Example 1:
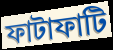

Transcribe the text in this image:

ফাটাফাটি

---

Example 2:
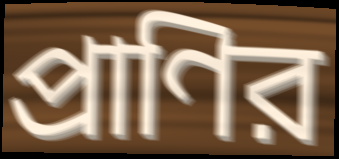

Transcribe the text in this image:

প্রাণির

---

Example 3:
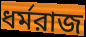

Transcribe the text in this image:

ধর্মরাজ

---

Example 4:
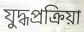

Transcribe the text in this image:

যুদ্ধপ্রক্রিয়া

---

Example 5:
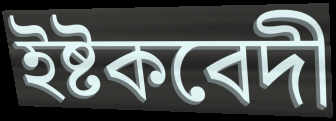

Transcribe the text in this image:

ইষ্টকবেদী